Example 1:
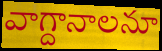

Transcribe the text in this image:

వాగ్దానాలనూ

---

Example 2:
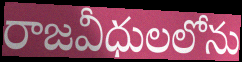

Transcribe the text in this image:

రాజవీధులలోను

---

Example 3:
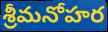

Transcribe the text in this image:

శ్రీమనోహర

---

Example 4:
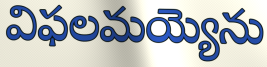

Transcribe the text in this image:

విఫలమయ్యెను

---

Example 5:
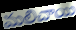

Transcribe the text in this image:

మలిచాయి